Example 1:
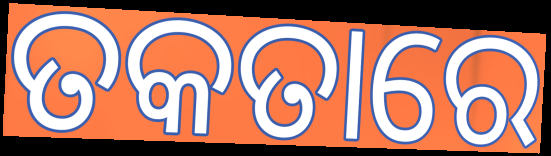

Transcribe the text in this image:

ତକତାରେ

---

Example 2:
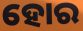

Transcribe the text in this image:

ହୋର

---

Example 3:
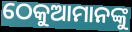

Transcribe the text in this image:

ଠେକୁଆମାନଙ୍କୁ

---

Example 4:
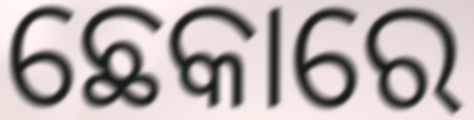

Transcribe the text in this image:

ଛେକାରେ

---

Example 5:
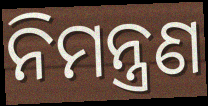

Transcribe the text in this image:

ନିମନ୍ତ୍ରଣ